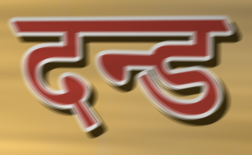
दन्ड